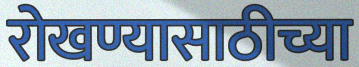
रोखण्यासाठीच्या